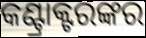
କଣ୍ଟ୍ରାକ୍ଟରଙ୍କର